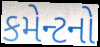
કમેન્ટનો